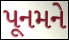
પૂનમને